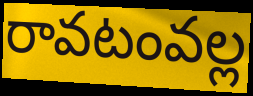
రావటంవల్ల